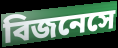
বিজনেসে